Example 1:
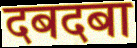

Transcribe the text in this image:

दबदबा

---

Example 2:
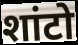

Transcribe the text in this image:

शांटो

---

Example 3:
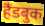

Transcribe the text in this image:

हैंडबुक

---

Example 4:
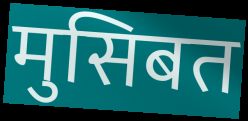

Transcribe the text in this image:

मुसिबत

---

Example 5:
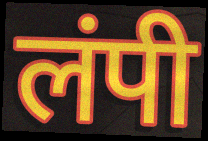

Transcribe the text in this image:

लंपी